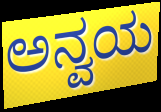
ಅನ್ವಯ